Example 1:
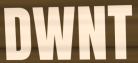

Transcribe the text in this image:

DWNT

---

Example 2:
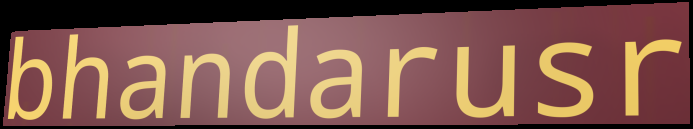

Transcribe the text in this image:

bhandarusr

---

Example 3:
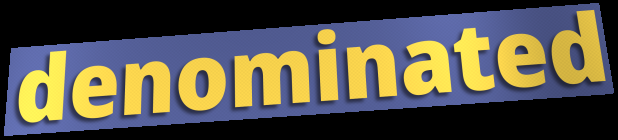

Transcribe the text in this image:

denominated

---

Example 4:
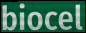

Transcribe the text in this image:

biocel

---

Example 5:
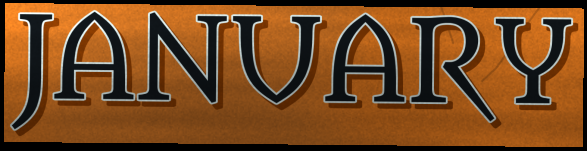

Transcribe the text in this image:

JANUARY